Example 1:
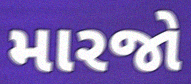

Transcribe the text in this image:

મારજો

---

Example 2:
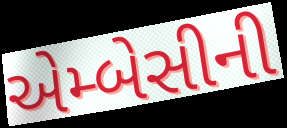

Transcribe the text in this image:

એમ્બેસીની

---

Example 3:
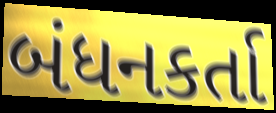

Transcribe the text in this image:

બંધનકર્તા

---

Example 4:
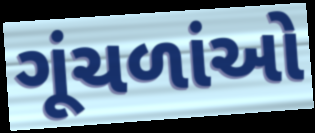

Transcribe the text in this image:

ગૂંચળાંઓ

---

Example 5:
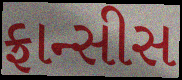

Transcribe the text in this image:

ફ્રાન્સીસ